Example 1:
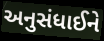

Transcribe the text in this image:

અનુસંધાઈને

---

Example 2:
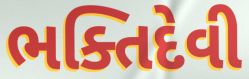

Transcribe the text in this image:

ભક્તિદેવી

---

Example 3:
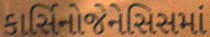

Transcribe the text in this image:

કાર્સિનોજેનેસિસમાં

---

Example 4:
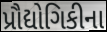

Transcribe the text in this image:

પ્રૌદ્યોગિકીના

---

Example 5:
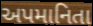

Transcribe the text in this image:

અપમાનિતા